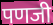
पणजी